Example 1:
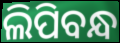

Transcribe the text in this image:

ଲିପିବନ୍ଧ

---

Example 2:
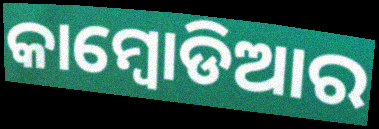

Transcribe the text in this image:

କାମ୍ବୋଡିଆର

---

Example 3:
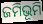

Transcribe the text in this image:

ଜମିଭୂମି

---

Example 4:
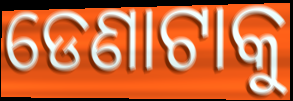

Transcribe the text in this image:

ଡେଣାଟାକୁ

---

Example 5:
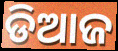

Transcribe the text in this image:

ଡିଆଜ